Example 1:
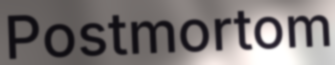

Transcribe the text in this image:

Postmortom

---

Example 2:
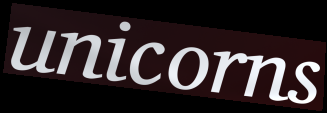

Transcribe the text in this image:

unicorns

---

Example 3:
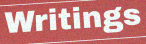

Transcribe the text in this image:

Writings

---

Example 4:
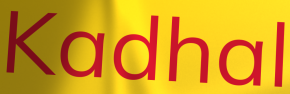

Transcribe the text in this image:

Kadhal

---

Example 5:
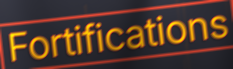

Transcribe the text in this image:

Fortifications